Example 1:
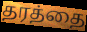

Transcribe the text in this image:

தரத்தை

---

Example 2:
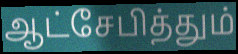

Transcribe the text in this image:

ஆட்சேபித்தும்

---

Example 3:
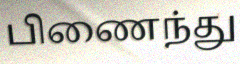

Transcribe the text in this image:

பிணைந்து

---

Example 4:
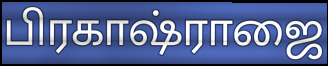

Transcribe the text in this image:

பிரகாஷ்ராஜை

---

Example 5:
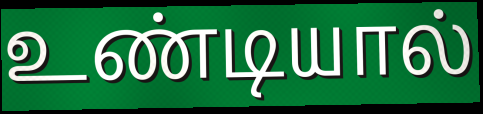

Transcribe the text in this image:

உண்டியால்